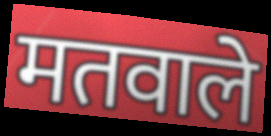
मतवाले